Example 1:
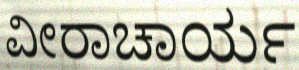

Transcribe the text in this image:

ವೀರಾಚಾರ್ಯ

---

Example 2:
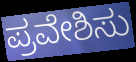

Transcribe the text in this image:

ಪ್ರವೇಶಿಸು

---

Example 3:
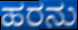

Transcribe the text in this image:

ಹರನು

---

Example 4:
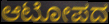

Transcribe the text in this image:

ಆಟೋಪದ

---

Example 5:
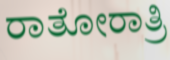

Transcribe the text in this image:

ರಾತೋರಾತ್ರಿ